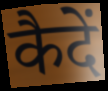
कैदें